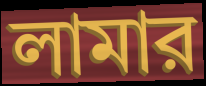
লামার